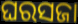
ଘରସଜା